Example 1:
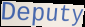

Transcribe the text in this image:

Deputy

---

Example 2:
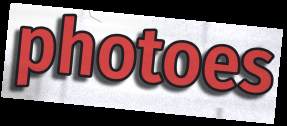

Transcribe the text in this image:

photoes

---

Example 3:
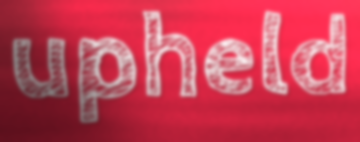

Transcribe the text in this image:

upheld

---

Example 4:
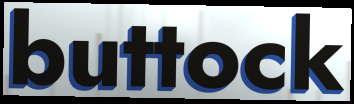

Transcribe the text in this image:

buttock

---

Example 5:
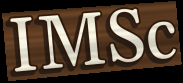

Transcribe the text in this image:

IMSc